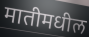
मातीमधील